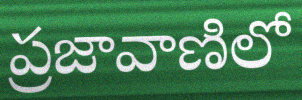
ప్రజావాణిలో